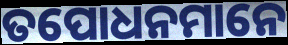
ତପୋଧନମାନେ